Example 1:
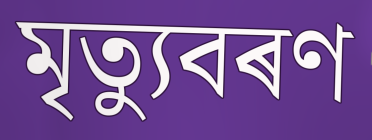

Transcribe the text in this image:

মৃত্যুবৰণ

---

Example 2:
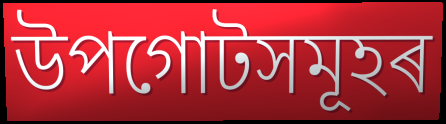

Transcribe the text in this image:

উপগোটসমূহৰ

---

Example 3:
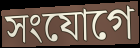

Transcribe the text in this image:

সংযোগে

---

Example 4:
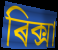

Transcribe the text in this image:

ৰিক্সা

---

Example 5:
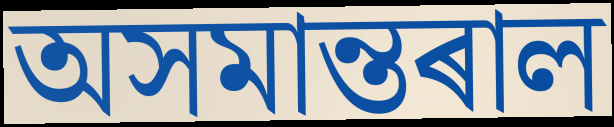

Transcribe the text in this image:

অসমান্তৰাল